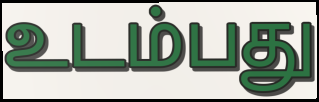
உடம்பது